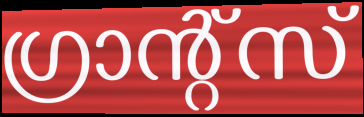
ഗ്രാന്റ്സ്